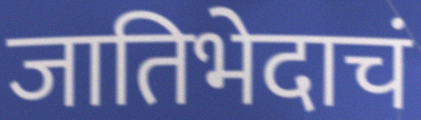
जातिभेदाचं